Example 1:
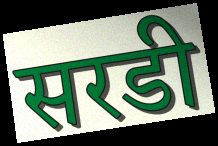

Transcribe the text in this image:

सरडी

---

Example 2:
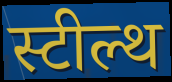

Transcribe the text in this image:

स्टील्थ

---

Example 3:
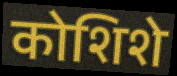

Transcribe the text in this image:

कोशिशे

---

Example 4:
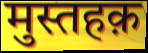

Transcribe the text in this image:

मुस्तहक़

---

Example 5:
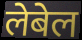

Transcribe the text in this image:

लेबेल